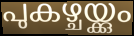
പുകഴ്ചയ്ക്കും